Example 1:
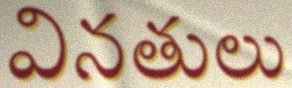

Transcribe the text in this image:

వినతులు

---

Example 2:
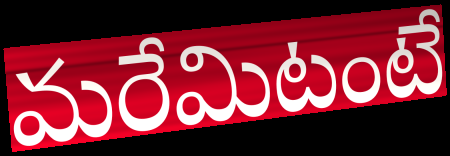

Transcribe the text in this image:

మరేమిటంటే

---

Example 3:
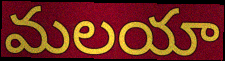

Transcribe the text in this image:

మలయా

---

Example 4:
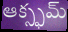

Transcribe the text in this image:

ఆక్స్ఫమ్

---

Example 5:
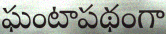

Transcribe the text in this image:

ఘంటాపథంగా